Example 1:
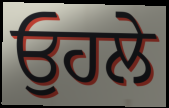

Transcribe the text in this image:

ਓੁਹਲੇ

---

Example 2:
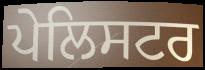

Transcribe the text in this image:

ਪੇਲਿਸਟਰ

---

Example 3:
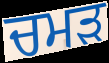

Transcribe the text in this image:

ਚਮੜ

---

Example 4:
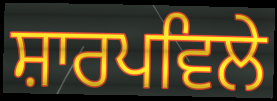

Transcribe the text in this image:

ਸ਼ਾਰਪਵਿਲੇ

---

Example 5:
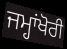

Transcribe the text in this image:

ਜਮ੍ਹਾਂਖੋਰੀ